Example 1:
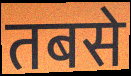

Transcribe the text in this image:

तबसे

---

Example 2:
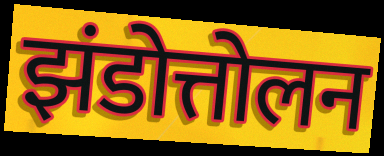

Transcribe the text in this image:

झंडोत्तोलन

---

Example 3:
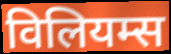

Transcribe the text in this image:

विलियम्स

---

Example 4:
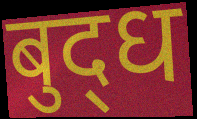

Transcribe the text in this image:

बुद्ध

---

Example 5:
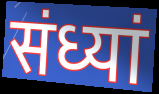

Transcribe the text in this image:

संध्यां